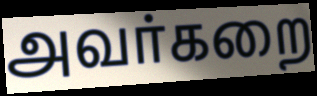
அவர்கறை